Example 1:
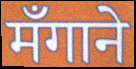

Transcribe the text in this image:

मँगाने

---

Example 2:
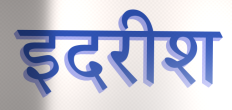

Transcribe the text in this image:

इदरीश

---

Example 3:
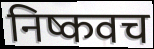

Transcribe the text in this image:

निष्कवच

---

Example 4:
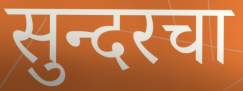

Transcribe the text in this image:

सुन्दरचा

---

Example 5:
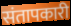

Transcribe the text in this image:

संतापकारी